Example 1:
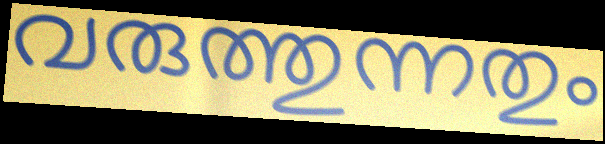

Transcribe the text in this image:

വരുത്തുന്നതും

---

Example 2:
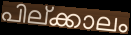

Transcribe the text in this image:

പില്ക്കാലം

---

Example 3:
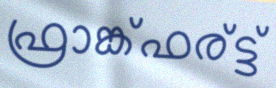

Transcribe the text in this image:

ഫ്രാങ്ക്ഫര്ട്ട്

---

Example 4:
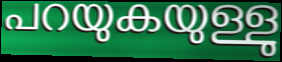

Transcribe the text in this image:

പറയുകയുള്ളു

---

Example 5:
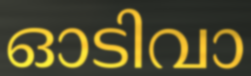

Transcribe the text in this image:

ഓടിവാ